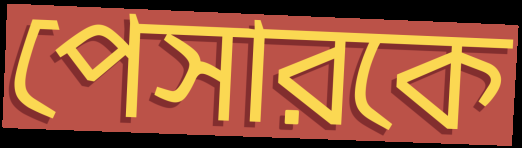
পেসারকে